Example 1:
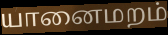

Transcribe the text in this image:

யானைமறம்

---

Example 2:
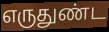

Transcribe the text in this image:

எருதுண்ட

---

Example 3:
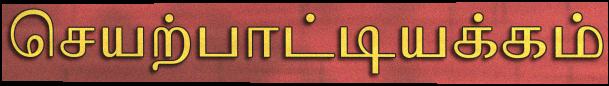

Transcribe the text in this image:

செயற்பாட்டியக்கம்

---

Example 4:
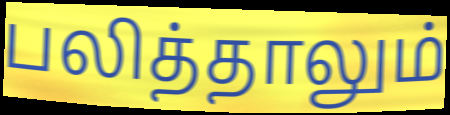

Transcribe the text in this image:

பலித்தாலும்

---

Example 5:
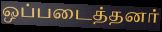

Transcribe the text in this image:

ஒப்படைத்தனர்